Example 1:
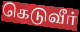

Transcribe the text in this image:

கெடுவீர்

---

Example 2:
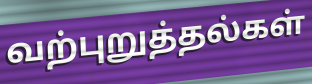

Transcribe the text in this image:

வற்புறுத்தல்கள்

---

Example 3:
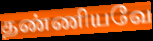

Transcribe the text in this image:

தண்ணியவே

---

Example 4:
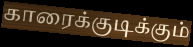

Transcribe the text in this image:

காரைக்குடிக்கும்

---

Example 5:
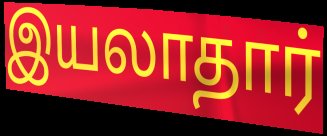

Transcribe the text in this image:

இயலாதார்